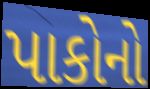
પાકોનો